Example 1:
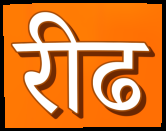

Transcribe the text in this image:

रीढ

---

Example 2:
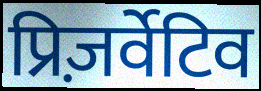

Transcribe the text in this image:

प्रिज़र्वेटिव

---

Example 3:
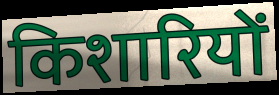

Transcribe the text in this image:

किशारियों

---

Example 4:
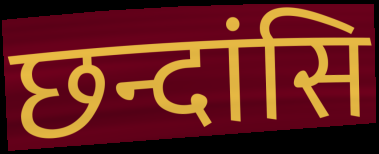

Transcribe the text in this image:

छन्दांसि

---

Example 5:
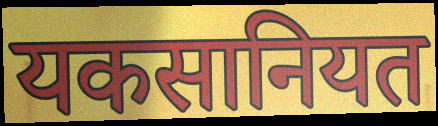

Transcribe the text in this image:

यकसानियत